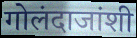
गोलंदाजांशी